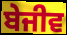
ਬੇਜੀਵ